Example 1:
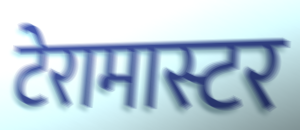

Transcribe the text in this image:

टेरामास्टर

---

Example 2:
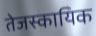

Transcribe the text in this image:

तेजस्कायिक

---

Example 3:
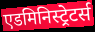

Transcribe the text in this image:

एडमिनिस्ट्रेटर्स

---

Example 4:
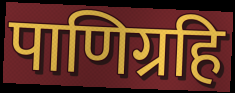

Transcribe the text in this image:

पाणिग्रहि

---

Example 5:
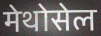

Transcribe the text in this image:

मेथोसेल